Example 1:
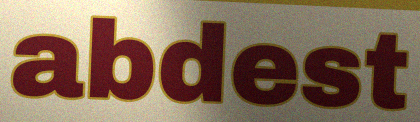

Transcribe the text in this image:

abdest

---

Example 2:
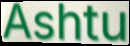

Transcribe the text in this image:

Ashtu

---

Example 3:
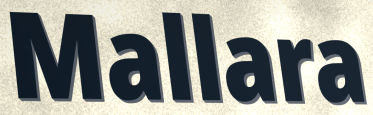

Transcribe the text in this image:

Mallara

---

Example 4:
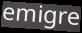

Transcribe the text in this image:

emigre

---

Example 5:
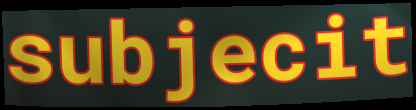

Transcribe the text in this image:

subjecit